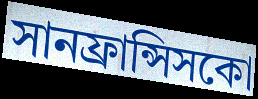
সানফ্রান্সিসকো